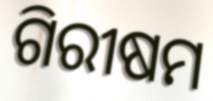
ଗିରୀଷମ